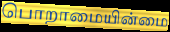
பொறாமையின்மை